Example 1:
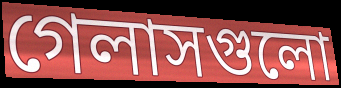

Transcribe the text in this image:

গেলাসগুলো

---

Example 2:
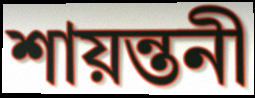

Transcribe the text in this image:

শায়ন্তনী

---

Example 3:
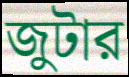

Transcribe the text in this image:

জুটার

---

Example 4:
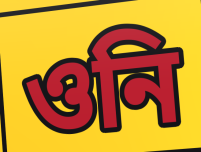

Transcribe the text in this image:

ওনি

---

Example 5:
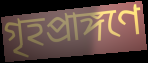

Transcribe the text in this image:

গৃহপ্রাঙ্গণে